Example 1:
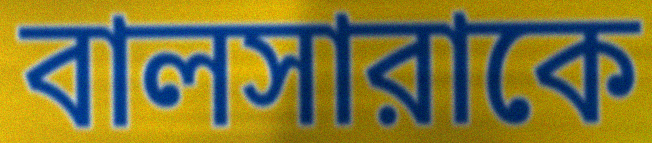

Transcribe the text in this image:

বালসারাকে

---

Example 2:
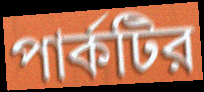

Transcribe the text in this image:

পার্কটির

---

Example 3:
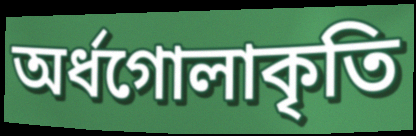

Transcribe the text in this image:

অর্ধগোলাকৃতি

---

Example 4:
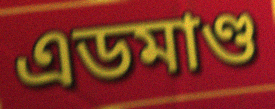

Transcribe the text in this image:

এডমাণ্ড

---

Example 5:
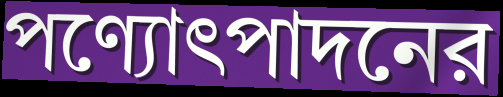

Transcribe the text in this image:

পণ্যোৎপাদনের